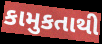
કામુકતાથી